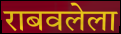
राबवलेला